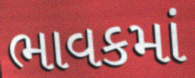
ભાવકમાં